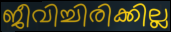
ജീവിച്ചിരിക്കില്ല